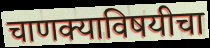
चाणक्याविषयीचा